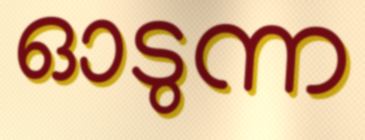
ഓടുന്ന